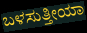
ಬಳಸುತ್ತೀಯಾ